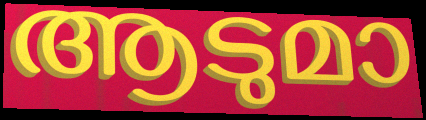
ആടുമാ